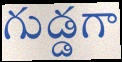
గుడ్డగా